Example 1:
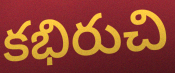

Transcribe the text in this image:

కభిరుచి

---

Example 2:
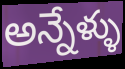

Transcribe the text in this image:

అన్నేళ్ళు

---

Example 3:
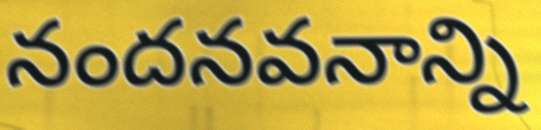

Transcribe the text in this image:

నందనవనాన్ని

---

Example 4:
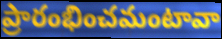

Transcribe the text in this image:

ప్రారంభించమంటావా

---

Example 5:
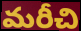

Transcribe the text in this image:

మరీచి